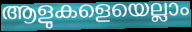
ആളുകളെയെല്ലാം